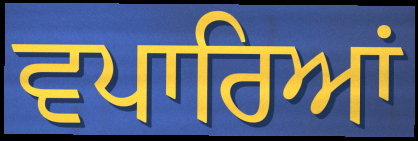
ਵਪਾਰਿਆਂ